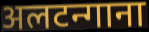
अलटन्गाना